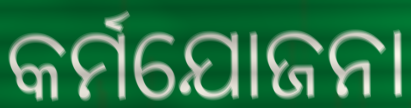
କର୍ମଯୋଜନା